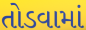
તોડવામાં